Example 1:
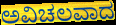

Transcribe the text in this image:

ಅವಿಚಲವಾದ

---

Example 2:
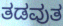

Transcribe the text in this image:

ತಡವುತ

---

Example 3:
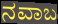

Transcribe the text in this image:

ನವಾಬ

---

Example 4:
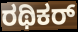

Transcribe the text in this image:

ರಥಿಕರ್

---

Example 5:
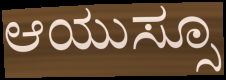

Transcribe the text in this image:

ಆಯುಸ್ಸೂ